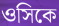
ওসিকে